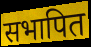
सभापित